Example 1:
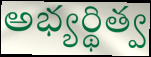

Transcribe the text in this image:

అభ్యర్థిత్వ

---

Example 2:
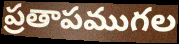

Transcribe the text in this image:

ప్రతాపముగల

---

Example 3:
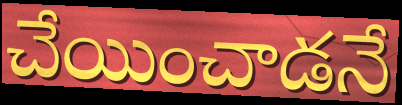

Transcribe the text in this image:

చేయించాడనే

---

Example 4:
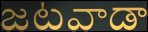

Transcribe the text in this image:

జటవాడా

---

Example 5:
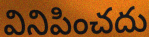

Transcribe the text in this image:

వినిపించదు